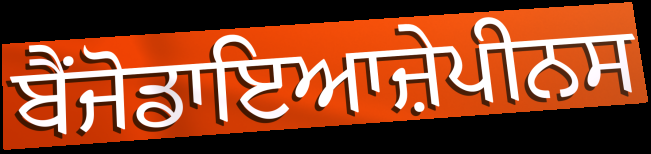
ਬੈਂਜੋਡਾਇਆਜ਼ੇਪੀਨਸ